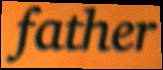
father